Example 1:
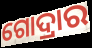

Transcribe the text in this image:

ଗୋଦ୍ରାର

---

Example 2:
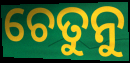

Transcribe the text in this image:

ଚେତୁନୁ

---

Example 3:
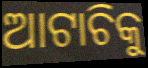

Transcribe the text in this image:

ଆଟାଚିକୁ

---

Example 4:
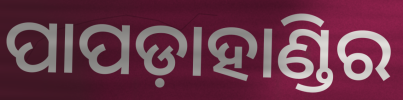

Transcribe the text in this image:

ପାପଡ଼ାହାଣ୍ଡିର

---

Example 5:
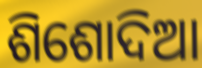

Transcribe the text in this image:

ଶିଶୋଦିଆ